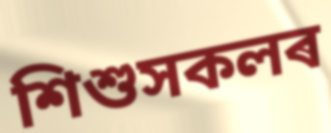
শিশুসকলৰ